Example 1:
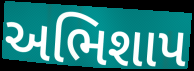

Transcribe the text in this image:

અભિશાપ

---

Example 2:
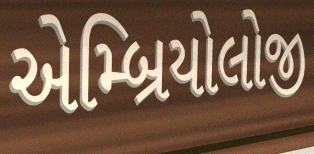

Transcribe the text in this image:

એમ્બ્રિયોલોજી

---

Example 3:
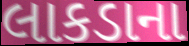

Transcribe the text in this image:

લાકડાના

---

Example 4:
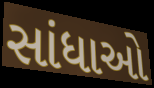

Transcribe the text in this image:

સાંધાઓ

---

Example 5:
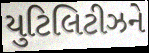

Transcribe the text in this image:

યુટિલિટીઝને